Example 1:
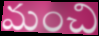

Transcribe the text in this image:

మంచి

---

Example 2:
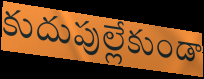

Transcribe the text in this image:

కుదుపుల్లేకుండా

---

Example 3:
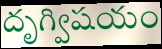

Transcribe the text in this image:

దృగ్విషయం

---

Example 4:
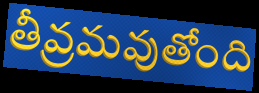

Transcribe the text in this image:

తీవ్రమవుతోంది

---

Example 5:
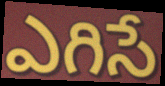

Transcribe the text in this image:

ఎగిసే